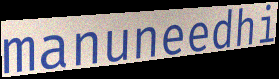
manuneedhi